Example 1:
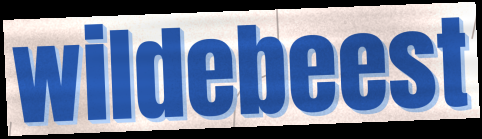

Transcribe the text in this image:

wildebeest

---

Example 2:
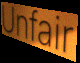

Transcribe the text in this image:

Unfair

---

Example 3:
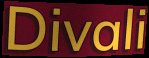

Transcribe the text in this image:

Divali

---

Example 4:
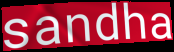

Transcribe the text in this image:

sandha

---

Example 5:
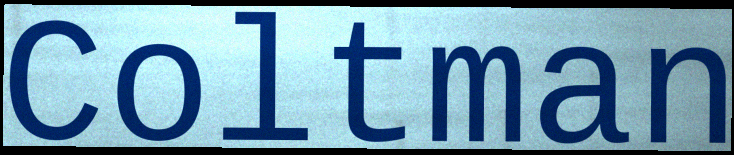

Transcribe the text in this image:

Coltman